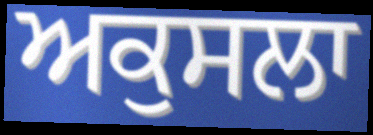
ਅਕੁਸਲਾ